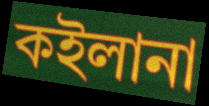
কইলানা